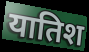
यातिश